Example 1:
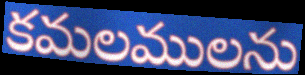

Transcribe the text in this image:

కమలములను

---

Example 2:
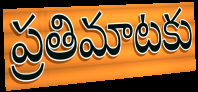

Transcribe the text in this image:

ప్రతిమాటకు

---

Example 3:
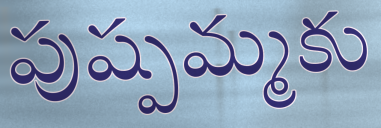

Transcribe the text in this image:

పుష్పమ్మకు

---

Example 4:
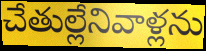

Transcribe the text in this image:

చేతుల్లేనివాళ్లను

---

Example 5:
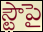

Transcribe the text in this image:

స్టౌపై